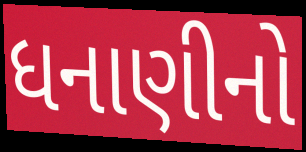
ધનાણીનો